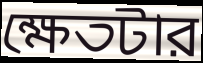
ক্ষেতটার